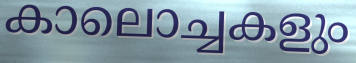
കാലൊച്ചകളും